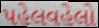
પહેલવહેલો